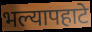
भल्यापहाटे